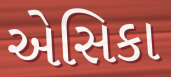
એસિકા